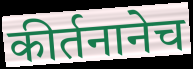
कीर्तनानेच